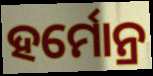
ହର୍ମୋନ୍ର